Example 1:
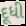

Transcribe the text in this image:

દૂધી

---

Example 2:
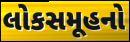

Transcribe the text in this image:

લોકસમૂહનો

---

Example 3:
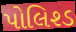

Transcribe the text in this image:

પોલિશ્ડ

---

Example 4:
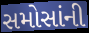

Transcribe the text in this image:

સમોસાંની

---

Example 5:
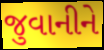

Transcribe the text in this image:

જુવાનીને